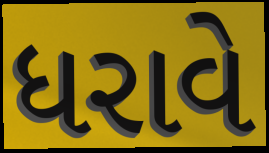
ધરાવે